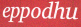
eppodhu